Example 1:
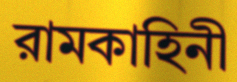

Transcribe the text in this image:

রামকাহিনী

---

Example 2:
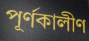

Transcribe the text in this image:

পূর্ণকালীণ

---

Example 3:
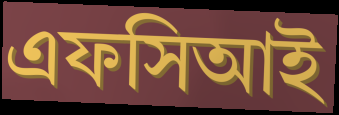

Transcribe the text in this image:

এফসিআই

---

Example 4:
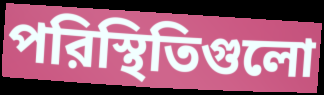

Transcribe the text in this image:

পরিস্থিতিগুলো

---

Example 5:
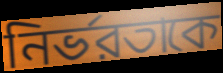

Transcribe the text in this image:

নির্ভরতাকে